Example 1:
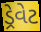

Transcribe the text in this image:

ડ્રેવેટ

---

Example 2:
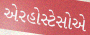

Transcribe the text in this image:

એરહોસ્ટેસોએ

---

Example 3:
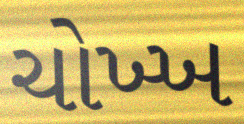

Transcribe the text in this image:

ચોખ્ખ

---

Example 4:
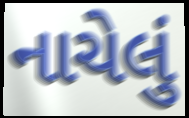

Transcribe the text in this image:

નાચેલું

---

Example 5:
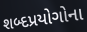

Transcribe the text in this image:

શબ્દપ્રયોગોના